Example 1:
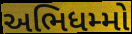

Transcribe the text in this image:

અભિધમ્મો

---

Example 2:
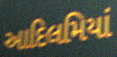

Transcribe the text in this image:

આદિલમિયાં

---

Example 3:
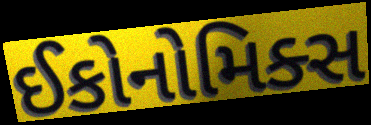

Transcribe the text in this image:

ઈકોનોમિક્સ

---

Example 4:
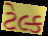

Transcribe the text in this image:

ટેલ્ક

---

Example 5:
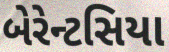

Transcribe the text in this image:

બેરેન્ટસિયા